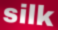
silk